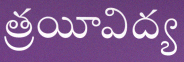
త్రయీవిద్య